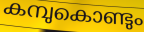
കമ്പുകൊണ്ടും